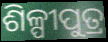
ଶିଳ୍ପୀପୁତ୍ର